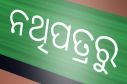
ନଥିପତ୍ରରୁ